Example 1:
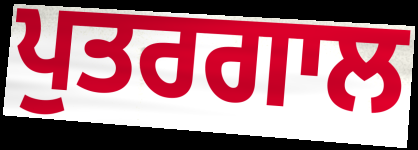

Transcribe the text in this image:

ਪੁਤਰਗਾਲ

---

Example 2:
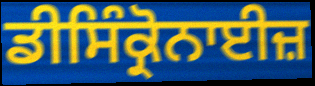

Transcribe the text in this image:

ਡੀਸਿੰਕ੍ਰੋਨਾਈਜ਼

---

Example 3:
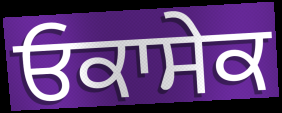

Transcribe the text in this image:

ਓਕਾਸੇਕ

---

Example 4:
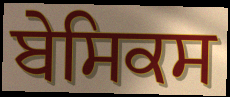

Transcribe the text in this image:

ਬੇਸਿਕਸ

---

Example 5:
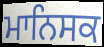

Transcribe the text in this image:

ਮਾਨਿਸਕ